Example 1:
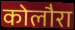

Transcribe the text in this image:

कोलौरा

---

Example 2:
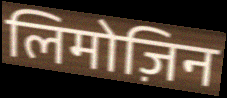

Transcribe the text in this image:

लिमोज़िन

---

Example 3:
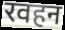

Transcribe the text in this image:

रवहन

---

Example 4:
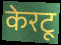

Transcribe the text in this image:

केरटू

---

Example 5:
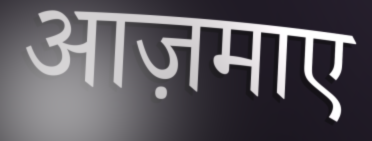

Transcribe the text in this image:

आज़माए